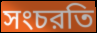
সংচরতি